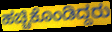
ಹಚ್ಚಿಕೊಂಡಿದ್ದರು